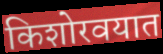
किशोरवयात